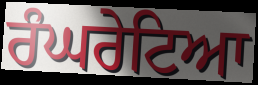
ਰੰਘਰੇਟਿਆ